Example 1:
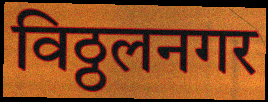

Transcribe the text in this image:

विठ्ठलनगर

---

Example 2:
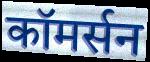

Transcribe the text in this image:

कॉमर्सन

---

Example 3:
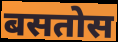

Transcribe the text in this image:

बसतोस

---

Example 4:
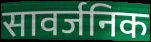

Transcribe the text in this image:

सावर्जनिक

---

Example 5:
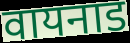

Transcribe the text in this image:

वायनाड